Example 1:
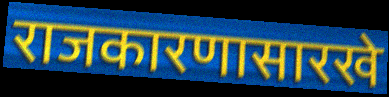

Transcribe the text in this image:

राजकारणासारखे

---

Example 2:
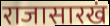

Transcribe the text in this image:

राजासारखं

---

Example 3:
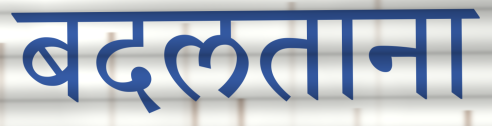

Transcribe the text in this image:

बदलताना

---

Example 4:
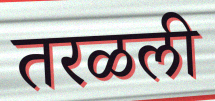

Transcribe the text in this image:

तरळली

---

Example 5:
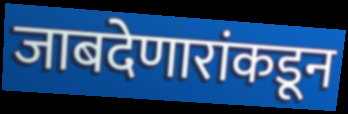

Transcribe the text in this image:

जाबदेणारांकडून